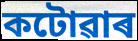
কটোৱাৰ